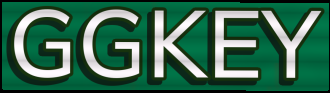
GGKEY